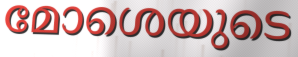
മോശെയുടെ